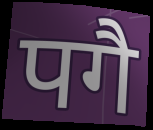
पगै